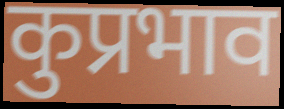
कुप्रभाव